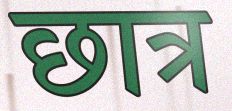
छात्र